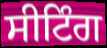
ਸੀਟਿੰਗ